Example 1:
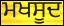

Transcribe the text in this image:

ਮਖਸੂਦ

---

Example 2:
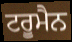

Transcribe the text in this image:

ਟਰੂਮੈਨ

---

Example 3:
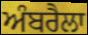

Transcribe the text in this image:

ਅੰਬਰੈਲਾ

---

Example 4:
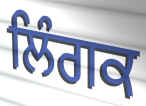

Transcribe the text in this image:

ਲਿੰਗਕ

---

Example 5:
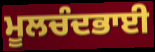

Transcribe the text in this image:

ਮੂਲਚੰਦਭਾਈ